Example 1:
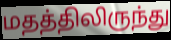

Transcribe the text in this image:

மதத்திலிருந்து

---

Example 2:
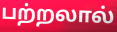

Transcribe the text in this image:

பற்றலால்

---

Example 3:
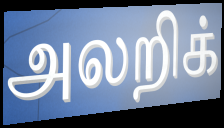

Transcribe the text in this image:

அலறிக்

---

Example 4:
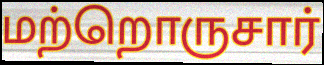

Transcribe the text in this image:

மற்றொருசார்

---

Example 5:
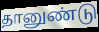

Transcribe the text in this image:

தானுண்டு